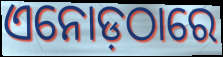
ଏନୋଡ଼ଠାରେ